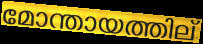
മോന്തായത്തില്